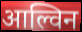
आल्विन